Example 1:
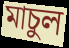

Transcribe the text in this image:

মাচুল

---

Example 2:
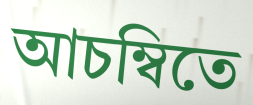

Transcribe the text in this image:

আচম্বিতে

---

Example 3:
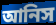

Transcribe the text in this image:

আনিস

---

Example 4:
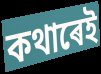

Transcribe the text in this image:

কথাৰেই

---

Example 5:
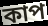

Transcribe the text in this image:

কাপ